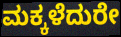
ಮಕ್ಕಳೆದುರೇ